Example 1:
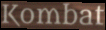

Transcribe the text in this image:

Kombat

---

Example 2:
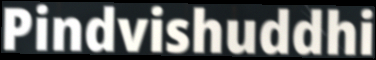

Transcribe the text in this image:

Pindvishuddhi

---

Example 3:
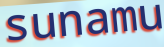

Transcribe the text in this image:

sunamu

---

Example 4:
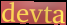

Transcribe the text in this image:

devta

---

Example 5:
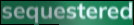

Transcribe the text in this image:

sequestered